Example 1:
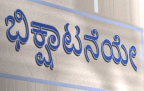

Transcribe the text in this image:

ಭಿಕ್ಷಾಟನೆಯೇ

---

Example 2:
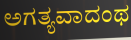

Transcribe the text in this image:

ಅಗತ್ಯವಾದಂಥ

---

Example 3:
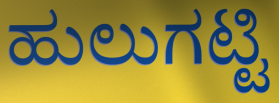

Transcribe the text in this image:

ಹುಲುಗಟ್ಟಿ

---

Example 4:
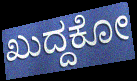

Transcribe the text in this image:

ಖುದ್ದಕೋ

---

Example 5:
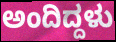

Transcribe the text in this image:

ಅಂದಿದ್ದಳು